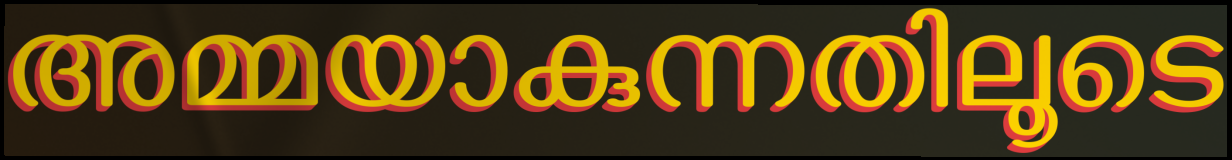
അമ്മയാകുന്നതിലൂടെ